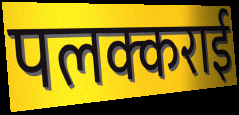
पलक्कराई